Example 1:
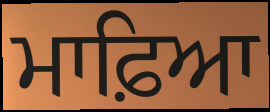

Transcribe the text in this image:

ਮਾਫ਼ਿਆ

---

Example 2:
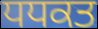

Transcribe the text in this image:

ਧਧਕਤ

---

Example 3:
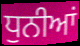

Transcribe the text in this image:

ਧੁਨੀਆਂ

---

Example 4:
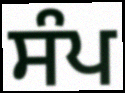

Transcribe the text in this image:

ਸੰਪ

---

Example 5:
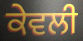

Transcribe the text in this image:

ਕੇਵਲੀ